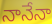
నానేనా